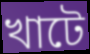
খাটে